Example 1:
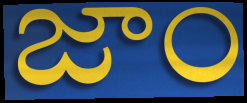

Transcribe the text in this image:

జాం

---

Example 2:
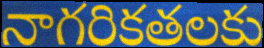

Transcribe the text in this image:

నాగరికతలకు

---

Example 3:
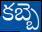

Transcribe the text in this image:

కబ్బె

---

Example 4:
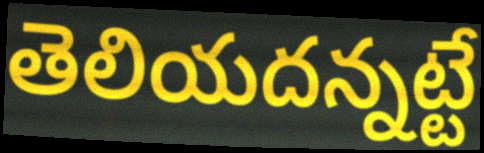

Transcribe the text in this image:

తెలియదన్నట్టే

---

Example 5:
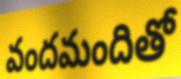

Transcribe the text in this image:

వందమందితో